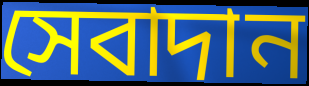
সেবাদান